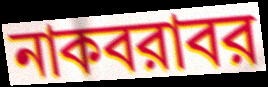
নাকবরাবর